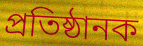
প্ৰতিষ্ঠানক